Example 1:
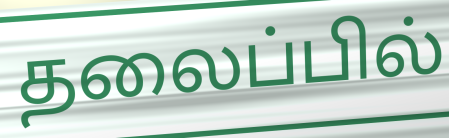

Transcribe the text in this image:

தலைப்பில்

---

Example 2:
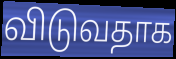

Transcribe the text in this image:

விடுவதாக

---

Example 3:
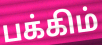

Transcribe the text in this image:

பக்கிம்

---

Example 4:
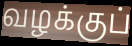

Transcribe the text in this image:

வழக்குப்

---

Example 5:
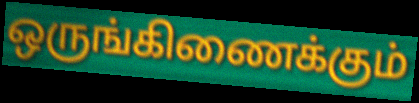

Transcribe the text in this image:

ஒருங்கிணைக்கும்